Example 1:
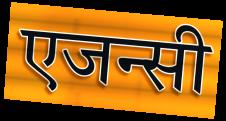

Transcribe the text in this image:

एजन्सी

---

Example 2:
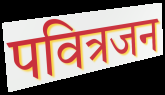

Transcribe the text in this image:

पवित्रजन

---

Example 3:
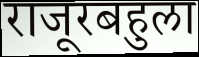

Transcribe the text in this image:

राजूरबहुला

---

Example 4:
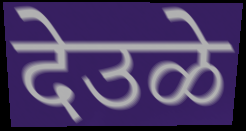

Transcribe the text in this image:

देउळे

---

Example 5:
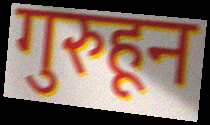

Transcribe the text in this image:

गुरुहून